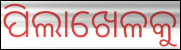
ପିଲାଖେଳକୁ